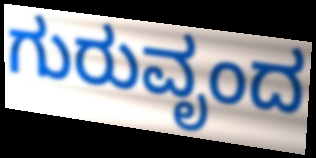
ಗುರುವೃಂದ